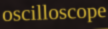
oscilloscope